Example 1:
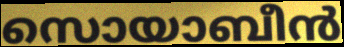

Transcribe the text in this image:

സൊയാബീൻ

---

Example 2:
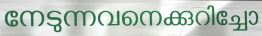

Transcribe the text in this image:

നേടുന്നവനെക്കുറിച്ചോ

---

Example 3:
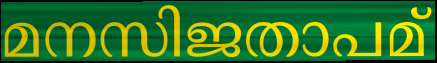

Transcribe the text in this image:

മനസിജതാപമ്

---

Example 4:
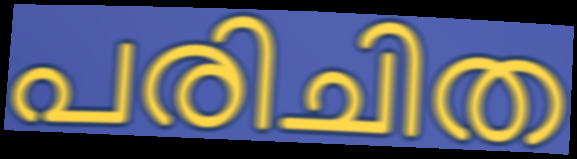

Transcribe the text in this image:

പരിചിത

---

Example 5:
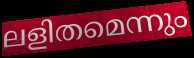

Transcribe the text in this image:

ലളിതമെന്നും